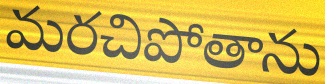
మరచిపోతాను